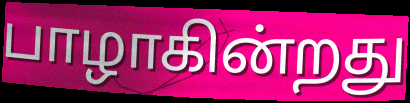
பாழாகின்றது